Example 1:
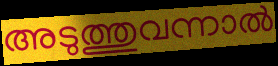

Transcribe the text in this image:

അടുത്തുവന്നാൽ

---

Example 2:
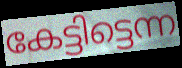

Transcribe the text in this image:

കേട്ടിട്ടെന്ന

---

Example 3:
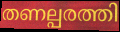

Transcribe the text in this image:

തണല്പരത്തി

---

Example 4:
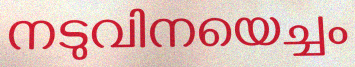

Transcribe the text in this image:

നടുവിനയെച്ചം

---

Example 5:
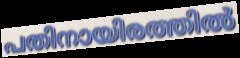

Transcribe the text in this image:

പതിനായിരത്തിൽ